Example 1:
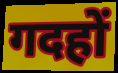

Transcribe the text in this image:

गदहों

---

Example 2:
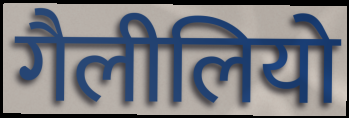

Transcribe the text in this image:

गैलीलियो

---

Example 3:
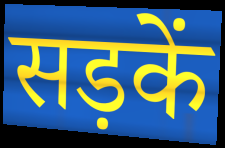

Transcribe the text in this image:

सड़कें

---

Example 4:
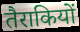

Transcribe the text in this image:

तैराकियों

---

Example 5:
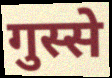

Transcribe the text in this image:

गुस्से